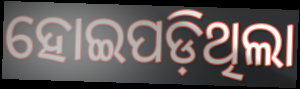
ହୋଇପଡ଼ିଥିଲା